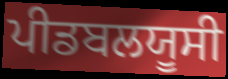
ਪੀਡਬਲਯੂਸੀ